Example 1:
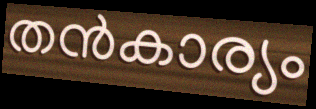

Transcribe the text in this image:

തൻകാര്യം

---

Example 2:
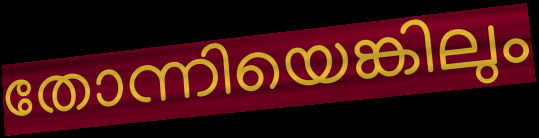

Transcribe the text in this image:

തോന്നിയെങ്കിലും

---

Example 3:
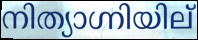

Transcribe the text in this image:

നിത്യാഗ്നിയില്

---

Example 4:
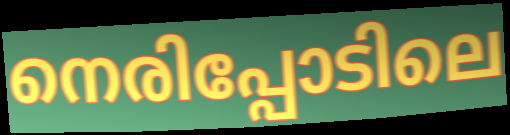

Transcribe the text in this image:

നെരിപ്പോടിലെ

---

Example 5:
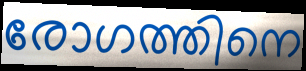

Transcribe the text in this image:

രോഗത്തിനെ